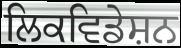
ਲਿਕਵਿਡੇਸ਼ਨ